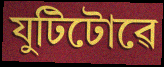
যুটিটোৱে